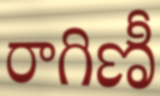
రాగిణీ